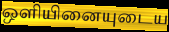
ஒளியினையுடைய